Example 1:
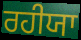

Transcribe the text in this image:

ਰਹੀਯਾ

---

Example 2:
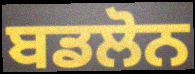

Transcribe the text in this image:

ਬਡਲੋਨ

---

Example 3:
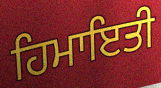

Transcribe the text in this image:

ਹਿਮਾਇਤੀ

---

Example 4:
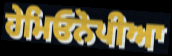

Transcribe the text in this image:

ਹੇਮਿਓਨੋਪੀਆ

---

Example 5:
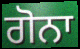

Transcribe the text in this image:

ਗੋਨਾ